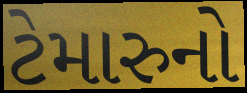
ટેમારુનો